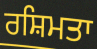
ਰਸ਼ਿਮਤਾ